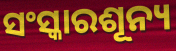
ସଂସ୍କାରଶୂନ୍ୟ